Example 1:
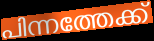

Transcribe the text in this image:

പിന്നത്തേക്ക്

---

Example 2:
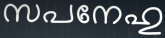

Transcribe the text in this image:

സപനേഹു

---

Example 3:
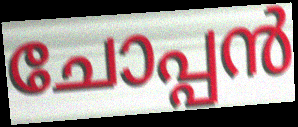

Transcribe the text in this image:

ചോപ്പൻ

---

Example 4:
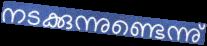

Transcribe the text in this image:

നടക്കുന്നുണ്ടെന്നു്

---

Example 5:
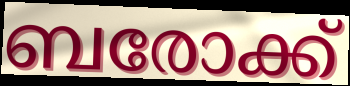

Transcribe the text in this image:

ബരോക്ക്